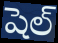
షెల్